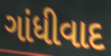
ગાંધીવાદ